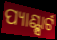
ପ୍ୟାଣ୍ଟ୍ସାର୍ଟ